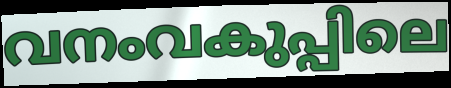
വനംവകുപ്പിലെ